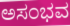
ಅಸಂಭವ